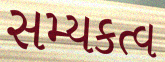
સમ્યકત્વ